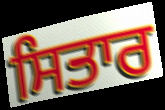
ਸਿਤਾਰ